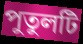
পুতুলটি